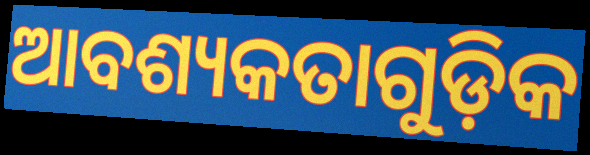
ଆବଶ୍ୟକତାଗୁଡ଼ିକ